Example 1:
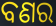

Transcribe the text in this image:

ବଣର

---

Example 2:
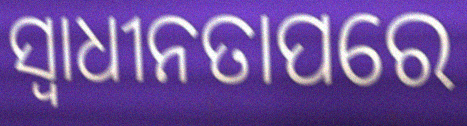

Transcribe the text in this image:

ସ୍ୱାଧୀନତାପରେ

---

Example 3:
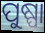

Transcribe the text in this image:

ପୁଷ୍ପା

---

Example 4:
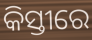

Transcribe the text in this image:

କିସ୍ତୀରେ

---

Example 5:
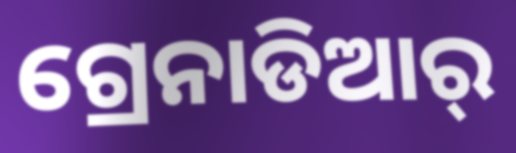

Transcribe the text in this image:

ଗ୍ରେନାଡିଆର୍